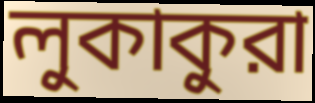
লুকাকুরা